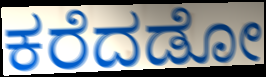
ಕರೆದಡೋ